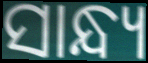
ସାନ୍ଧ୍ୟ